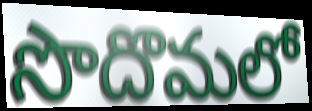
సొదొమలో